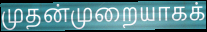
முதன்முறையாகக்